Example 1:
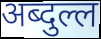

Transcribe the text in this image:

अब्दुल्ल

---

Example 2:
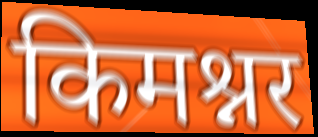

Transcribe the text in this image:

किमश्नर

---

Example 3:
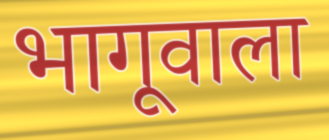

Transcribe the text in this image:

भागूवाला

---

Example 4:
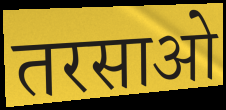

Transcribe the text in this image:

तरसाओ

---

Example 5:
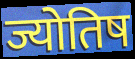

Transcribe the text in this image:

ज्योतिष